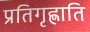
प्रतिगृह्णाति